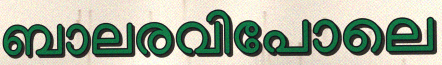
ബാലരവിപോലെ